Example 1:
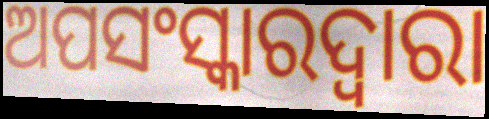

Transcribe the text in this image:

ଅପସଂସ୍କାରଦ୍ୱାରା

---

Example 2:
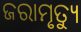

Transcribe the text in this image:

ଜରାମୃତ୍ୟୁ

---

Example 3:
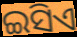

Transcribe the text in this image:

ଇସିଏ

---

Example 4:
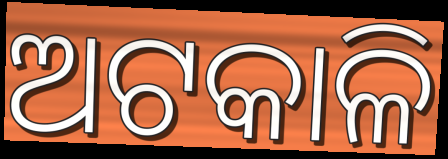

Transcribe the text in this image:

ଅଟକାଳି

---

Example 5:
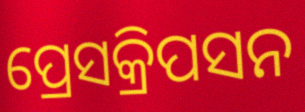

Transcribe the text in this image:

ପ୍ରେସକ୍ରିପସନ